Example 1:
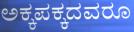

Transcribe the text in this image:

ಅಕ್ಕಪಕ್ಕದವರೂ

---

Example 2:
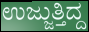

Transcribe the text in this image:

ಉಜ್ಜುತ್ತಿದ್ದ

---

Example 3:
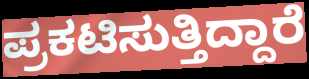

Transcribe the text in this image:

ಪ್ರಕಟಿಸುತ್ತಿದ್ದಾರೆ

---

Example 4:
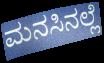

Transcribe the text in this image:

ಮನಸಿನಲ್ಲೆ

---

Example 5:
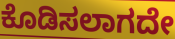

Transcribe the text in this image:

ಕೊಡಿಸಲಾಗದೇ